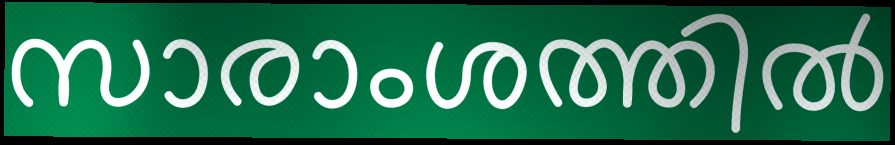
സാരാംശത്തിൽ